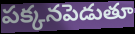
పక్కనపెడుతూ